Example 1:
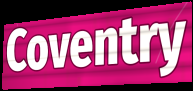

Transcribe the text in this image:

Coventry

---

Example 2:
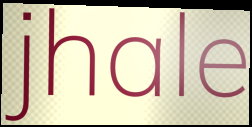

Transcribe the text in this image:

jhale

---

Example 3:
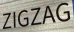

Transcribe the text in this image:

ZIGZAG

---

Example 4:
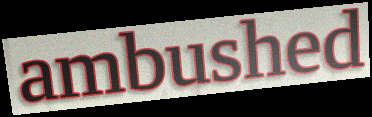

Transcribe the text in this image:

ambushed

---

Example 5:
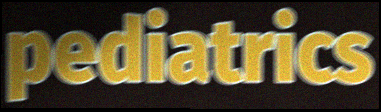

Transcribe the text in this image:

pediatrics